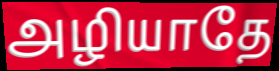
அழியாதே